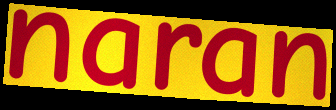
naran